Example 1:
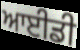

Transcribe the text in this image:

ਆਈਡੀ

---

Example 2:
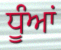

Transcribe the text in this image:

ਧੂੰਆਂ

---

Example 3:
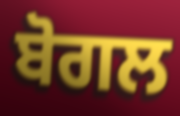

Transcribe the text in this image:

ਬੋਗਲ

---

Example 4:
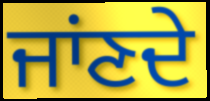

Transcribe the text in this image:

ਜਾਂਣਦੇ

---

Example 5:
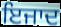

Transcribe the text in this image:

ਇਜਾਦ